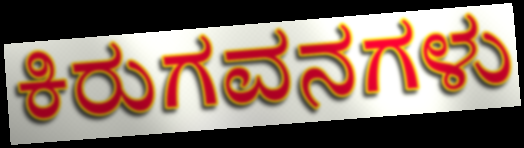
ಕಿರುಗವನಗಳು